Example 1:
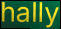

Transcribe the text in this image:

hally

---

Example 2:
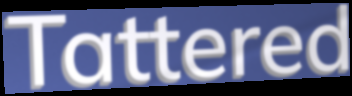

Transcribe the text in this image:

Tattered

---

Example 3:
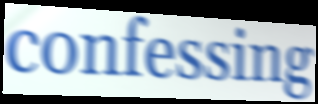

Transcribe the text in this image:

confessing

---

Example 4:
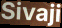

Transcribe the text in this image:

Sivaji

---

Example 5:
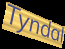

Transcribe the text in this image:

Tyndal